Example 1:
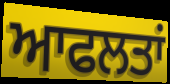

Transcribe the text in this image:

ਆਫਲਤਾਂ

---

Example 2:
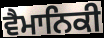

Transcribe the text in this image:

ਵੈਮਾਨਿਕੀ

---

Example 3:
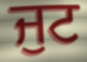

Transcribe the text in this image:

ਜੁਟ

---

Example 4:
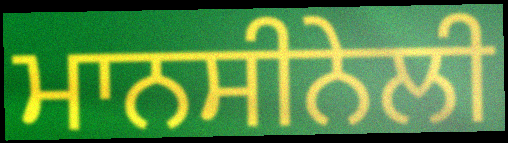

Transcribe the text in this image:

ਮਾਨਸੀਨੇਲੀ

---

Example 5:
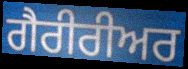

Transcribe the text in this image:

ਗੈਰੀਰੀਅਰ